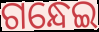
ଗନ୍ଧେଇ